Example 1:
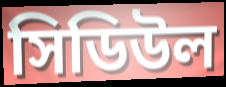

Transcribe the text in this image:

সিডিউল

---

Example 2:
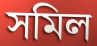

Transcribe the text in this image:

সমিল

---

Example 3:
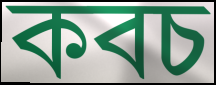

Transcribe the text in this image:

কবচ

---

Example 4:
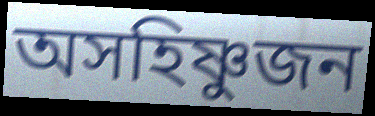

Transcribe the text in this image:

অসহিষ্ণুজন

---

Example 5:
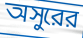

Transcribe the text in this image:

অসুরের